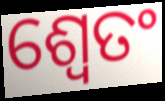
ଶ୍ଵେତଂ